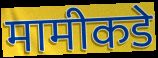
मामीकडे